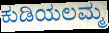
ಕುಡಿಯಲಮ್ಮ